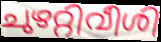
ചുഴറ്റിവീശി